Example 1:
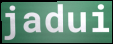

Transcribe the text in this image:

jadui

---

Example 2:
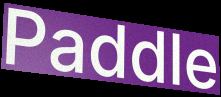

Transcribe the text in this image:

Paddle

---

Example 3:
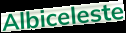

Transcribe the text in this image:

Albiceleste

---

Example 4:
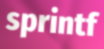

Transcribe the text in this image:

sprintf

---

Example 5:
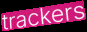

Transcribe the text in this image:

trackers